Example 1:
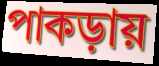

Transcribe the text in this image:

পাকড়ায়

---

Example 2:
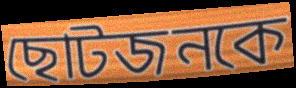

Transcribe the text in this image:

ছোটজনকে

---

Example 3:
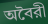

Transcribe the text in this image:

অবৈরী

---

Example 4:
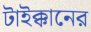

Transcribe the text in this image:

টাইক্কানের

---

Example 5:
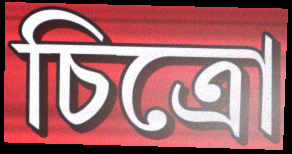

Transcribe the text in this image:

চিত্রো